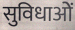
सुविधाओें